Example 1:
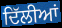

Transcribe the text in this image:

ਦਿੱਲੀਆਂ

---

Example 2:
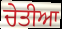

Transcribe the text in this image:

ਚੇਤੀਆ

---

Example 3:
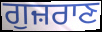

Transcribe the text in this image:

ਗੁਜ਼ਰਾਣ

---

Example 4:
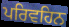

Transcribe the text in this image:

ਪਰਿਵਹਿਨ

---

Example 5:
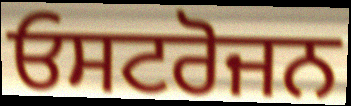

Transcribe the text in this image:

ਓਸਟਰੋਜਨ